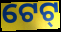
ଟେଟ୍